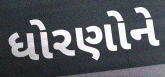
ધોરણોને